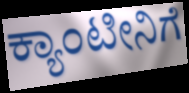
ಕ್ಯಾಂಟೀನಿಗೆ